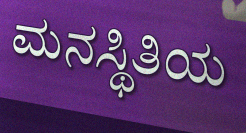
ಮನಸ್ಥಿತಿಯ